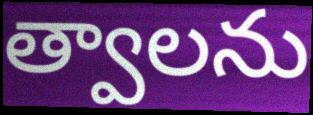
త్వాలను